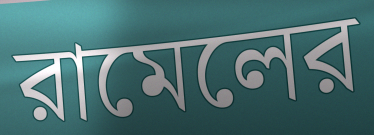
রামেলের